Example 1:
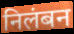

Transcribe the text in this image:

निलंबन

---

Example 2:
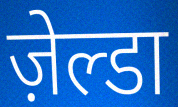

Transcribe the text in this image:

ज़ेल्डा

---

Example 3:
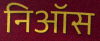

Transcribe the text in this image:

निऑस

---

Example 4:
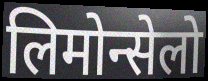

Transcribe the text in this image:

लिमोन्सेलो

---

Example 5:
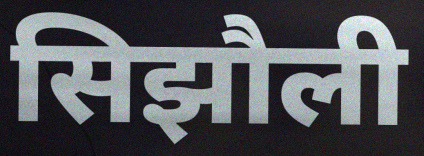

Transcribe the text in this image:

सिझौली